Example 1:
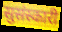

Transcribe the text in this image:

सुसंस्कारी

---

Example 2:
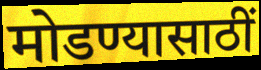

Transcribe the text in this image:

मोडण्यासाठीं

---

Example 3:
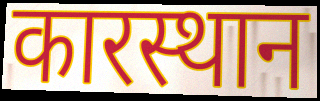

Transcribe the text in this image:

कारस्थान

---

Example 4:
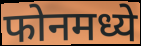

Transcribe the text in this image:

फोनमध्ये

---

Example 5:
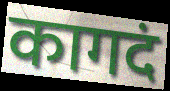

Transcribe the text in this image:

कागदं